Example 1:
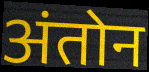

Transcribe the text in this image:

अंतोन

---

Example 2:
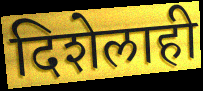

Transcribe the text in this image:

दिशेलाही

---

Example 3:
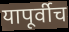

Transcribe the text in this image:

यापूर्वीच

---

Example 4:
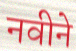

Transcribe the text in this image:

नवीने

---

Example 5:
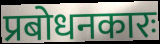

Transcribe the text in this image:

प्रबोधनकारः